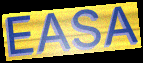
EASA